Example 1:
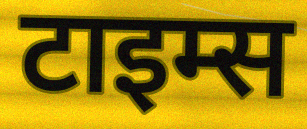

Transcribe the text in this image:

टाइम्स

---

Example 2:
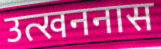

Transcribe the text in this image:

उत्खननास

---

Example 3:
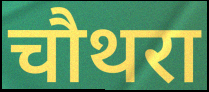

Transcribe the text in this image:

चौथरा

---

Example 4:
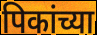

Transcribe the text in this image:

पिकांच्या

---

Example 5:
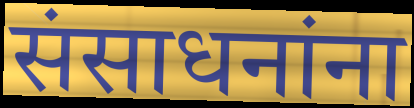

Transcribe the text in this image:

संसाधनांना